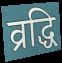
व्रद्धि